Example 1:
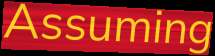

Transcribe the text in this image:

Assuming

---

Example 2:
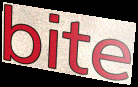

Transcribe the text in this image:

bite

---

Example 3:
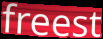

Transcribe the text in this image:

freest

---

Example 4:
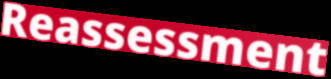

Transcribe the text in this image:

Reassessment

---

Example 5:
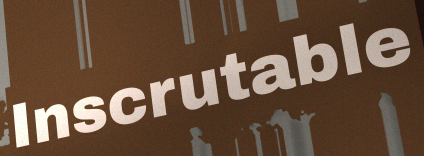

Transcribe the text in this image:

Inscrutable